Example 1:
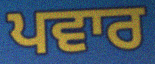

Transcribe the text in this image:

ਪਵਾਰ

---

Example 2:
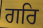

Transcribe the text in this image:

ਗਰਿ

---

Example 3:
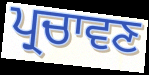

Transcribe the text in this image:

ਪ੍ਰਚਾਵਣ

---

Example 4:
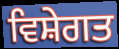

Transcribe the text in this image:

ਵਿਸ਼ੇਗਤ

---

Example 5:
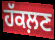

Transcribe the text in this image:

ਹੱਕਲ਼ਣ